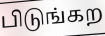
பிடுங்கற